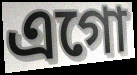
এগো